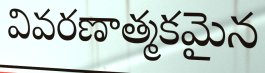
వివరణాత్మకమైన